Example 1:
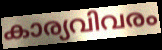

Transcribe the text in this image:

കാര്യവിവരം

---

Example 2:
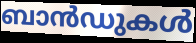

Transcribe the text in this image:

ബാൻഡുകൾ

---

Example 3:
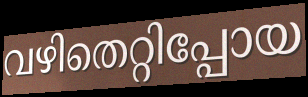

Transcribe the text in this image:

വഴിതെറ്റിപ്പോയ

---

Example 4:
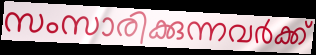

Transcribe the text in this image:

സംസാരിക്കുന്നവർക്ക്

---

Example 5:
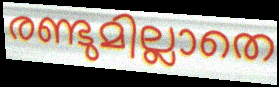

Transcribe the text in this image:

രണ്ടുമില്ലാതെ